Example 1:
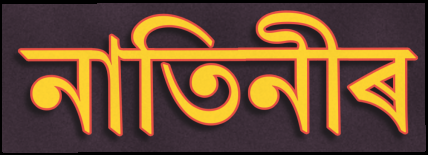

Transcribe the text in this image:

নাতিনীৰ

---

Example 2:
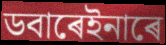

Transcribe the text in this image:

ডবাৰেইনাৰে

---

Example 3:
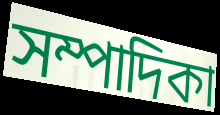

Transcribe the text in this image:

সম্পাদিকা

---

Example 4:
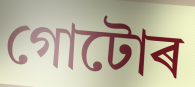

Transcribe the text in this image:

গোটোৰ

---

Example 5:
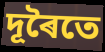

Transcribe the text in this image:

দূৰৈতে